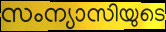
സംന്യാസിയുടെ